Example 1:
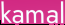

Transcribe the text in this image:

kamal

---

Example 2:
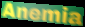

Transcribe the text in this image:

Anemia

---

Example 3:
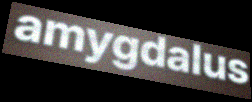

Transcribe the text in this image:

amygdalus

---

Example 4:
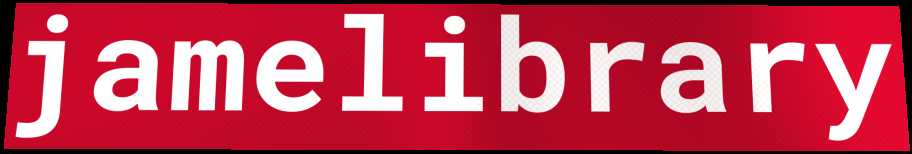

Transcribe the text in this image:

jamelibrary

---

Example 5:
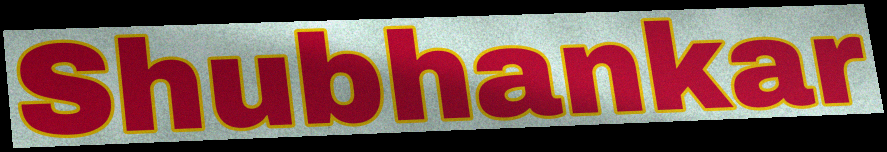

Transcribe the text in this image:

Shubhankar